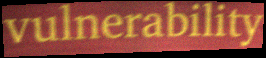
vulnerability